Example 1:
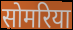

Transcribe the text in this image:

सोमरिया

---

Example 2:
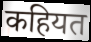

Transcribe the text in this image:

कहियत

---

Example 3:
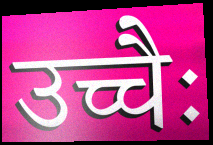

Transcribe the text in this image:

उच्चैः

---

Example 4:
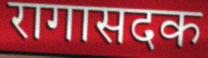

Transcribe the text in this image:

रागासदक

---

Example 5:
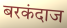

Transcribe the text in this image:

बरकंदाज